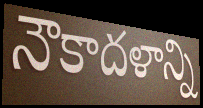
నౌకాదళాన్ని